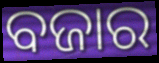
ବଜାର